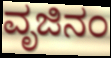
ವೃಜಿನಂ